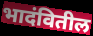
भादंवितील